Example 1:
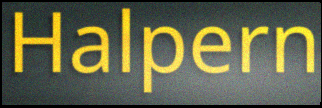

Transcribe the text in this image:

Halpern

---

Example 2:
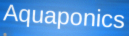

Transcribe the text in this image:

Aquaponics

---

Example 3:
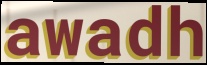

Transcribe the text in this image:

awadh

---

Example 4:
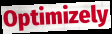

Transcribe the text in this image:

Optimizely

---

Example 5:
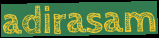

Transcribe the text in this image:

adirasam